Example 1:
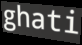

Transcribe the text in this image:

ghati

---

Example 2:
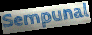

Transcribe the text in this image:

Sempunal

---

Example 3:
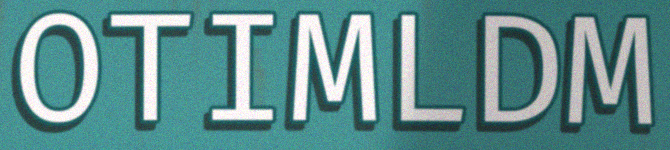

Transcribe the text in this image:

OTIMLDM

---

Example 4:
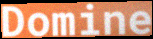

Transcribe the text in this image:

Domine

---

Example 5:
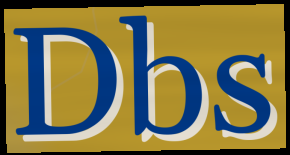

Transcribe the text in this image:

Dbs